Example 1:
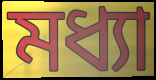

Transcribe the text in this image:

মধ্যা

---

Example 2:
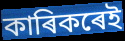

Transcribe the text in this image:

কাৰিকৰেই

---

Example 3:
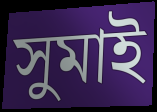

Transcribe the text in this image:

সুমাই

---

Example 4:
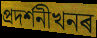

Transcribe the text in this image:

প্ৰদৰ্শনীখনৰ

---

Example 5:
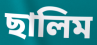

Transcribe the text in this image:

ছালিম